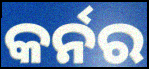
କର୍ନର